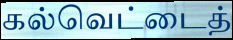
கல்வெட்டைத்